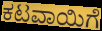
ಕಟವಾಯಿಗೆ